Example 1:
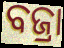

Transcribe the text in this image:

ବଜ୍ରା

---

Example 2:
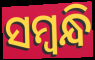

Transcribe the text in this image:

ସମ୍ବନ୍ଧି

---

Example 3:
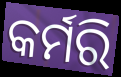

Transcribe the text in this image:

କର୍ମରି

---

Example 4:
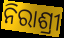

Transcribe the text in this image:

ନିରାଶ୍ରୀ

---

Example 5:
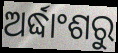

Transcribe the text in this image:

ଅର୍ଦ୍ଧାଂଶରୁ